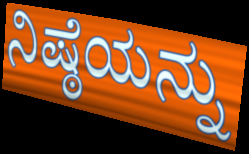
ನಿಷ್ಠೆಯನ್ನು